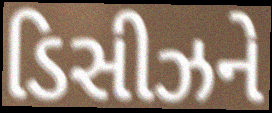
ડિસીઝને